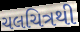
ચલચિત્રથી